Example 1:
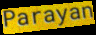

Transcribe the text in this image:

Parayan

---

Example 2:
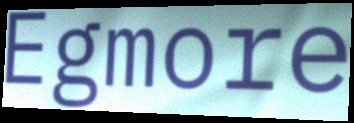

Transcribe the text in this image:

Egmore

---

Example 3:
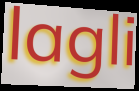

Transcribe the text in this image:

lagli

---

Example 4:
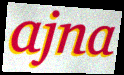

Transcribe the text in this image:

ajna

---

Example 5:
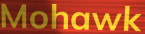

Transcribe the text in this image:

Mohawk